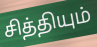
சித்தியும்